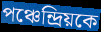
পঞ্চেন্দ্রিয়কে